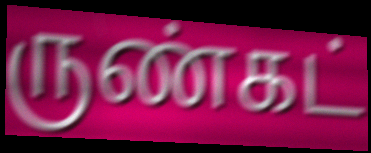
ருண்கட்